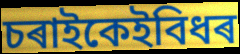
চৰাইকেইবিধৰ